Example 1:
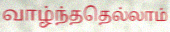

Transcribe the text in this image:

வாழ்ந்ததெல்லாம்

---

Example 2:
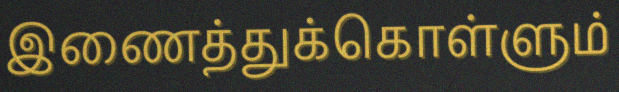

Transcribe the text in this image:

இணைத்துக்கொள்ளும்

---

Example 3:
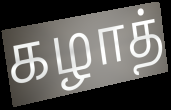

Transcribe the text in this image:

கழாத்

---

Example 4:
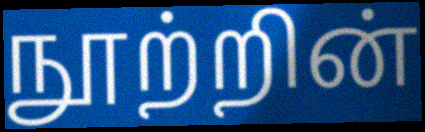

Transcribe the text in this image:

நூற்றின்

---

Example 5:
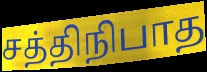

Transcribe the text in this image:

சத்திநிபாத